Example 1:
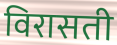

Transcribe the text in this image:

विरासती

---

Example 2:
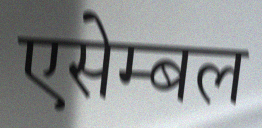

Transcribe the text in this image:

एसेम्बल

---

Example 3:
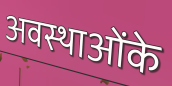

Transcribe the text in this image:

अवस्थाओंके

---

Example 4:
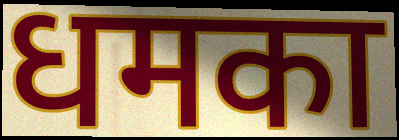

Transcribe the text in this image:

धमका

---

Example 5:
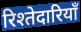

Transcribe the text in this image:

रिश्तेदारियाँ